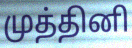
முத்தினி